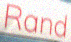
Rand